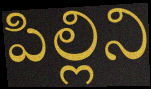
పిల్లిని